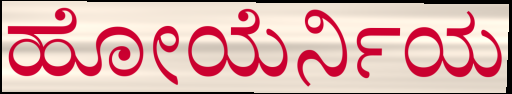
ಹೋಯೆರ್ನಿಯ